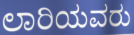
ಲಾರಿಯವರು